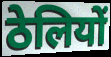
ठेलियों